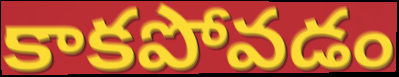
కాకపోవడం